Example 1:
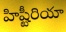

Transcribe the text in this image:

హిష్టీరియా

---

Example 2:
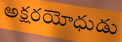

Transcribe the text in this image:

అక్షరయోధుడు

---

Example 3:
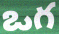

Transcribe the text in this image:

ఒగ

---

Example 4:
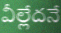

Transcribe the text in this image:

వీల్లేదనే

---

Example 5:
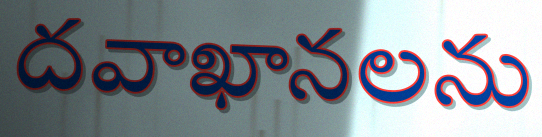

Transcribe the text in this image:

దవాఖానలను